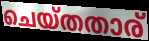
ചെയ്തതാര്